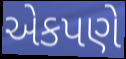
એકપણે